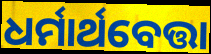
ଧର୍ମାର୍ଥବେତ୍ତା